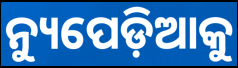
ନ୍ୟୁପେଡ଼ିଆକୁ